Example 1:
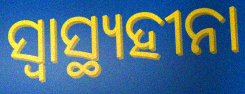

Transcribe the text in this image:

ସ୍ଵାସ୍ଥ୍ୟହୀନା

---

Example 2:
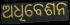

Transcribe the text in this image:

ଅଧିବେଶନ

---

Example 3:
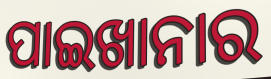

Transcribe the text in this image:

ପାଇଖାନାର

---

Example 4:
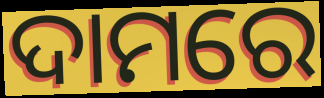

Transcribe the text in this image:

ଦାମରେ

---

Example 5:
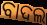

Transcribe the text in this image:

ବାଦଲ